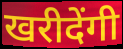
खरीदेंगी